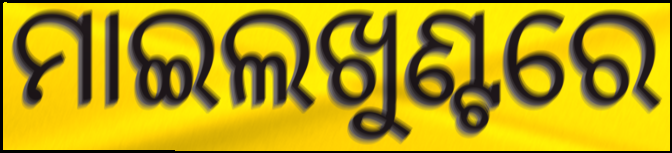
ମାଇଲଖୁଣ୍ଟରେ